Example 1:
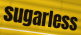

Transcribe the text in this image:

sugarless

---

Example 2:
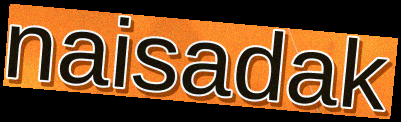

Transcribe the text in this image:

naisadak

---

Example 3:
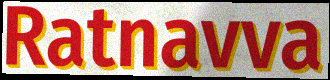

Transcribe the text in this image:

Ratnavva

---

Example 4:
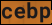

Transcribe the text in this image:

cebp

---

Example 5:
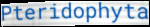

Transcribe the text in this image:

Pteridophyta